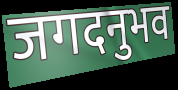
जगदनुभव